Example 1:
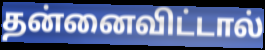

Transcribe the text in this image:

தன்னைவிட்டால்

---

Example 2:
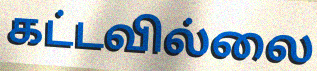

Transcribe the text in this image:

கட்டவில்லை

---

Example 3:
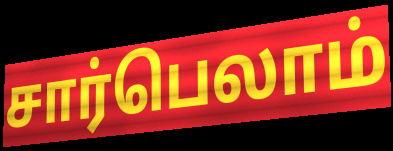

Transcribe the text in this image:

சார்பெலாம்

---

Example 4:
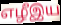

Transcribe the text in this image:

எழீஇய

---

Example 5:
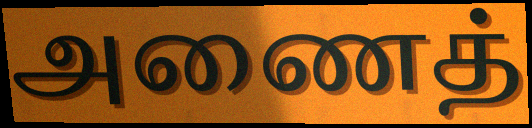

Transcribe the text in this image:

அணைத்